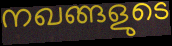
നഖങ്ങളുടെ